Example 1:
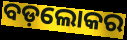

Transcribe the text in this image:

ବଡ଼ଲୋକର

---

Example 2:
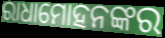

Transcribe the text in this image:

ରାଧାମୋହନଙ୍କର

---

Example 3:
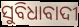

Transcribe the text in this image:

ସୁବିଧାବାଦୀ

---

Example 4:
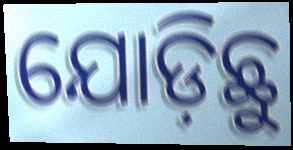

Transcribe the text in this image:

ଯୋଡ଼ିଛୁ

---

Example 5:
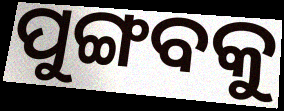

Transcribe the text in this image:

ପୁଙ୍ଗବକୁ